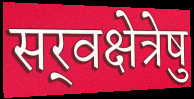
सर्वक्षेत्रेषु